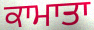
ਕਾਮਾਤਾ